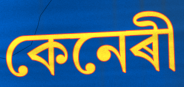
কেনেৰী